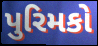
પુરિમકો